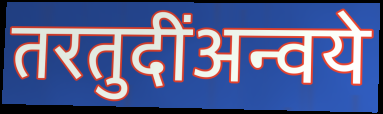
तरतुदींअन्वये